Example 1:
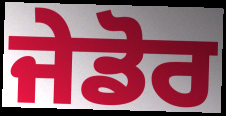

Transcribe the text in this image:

ਜੇਡੋਰ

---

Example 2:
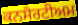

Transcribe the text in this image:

ਕਨਸੋਰਟੀਅਮ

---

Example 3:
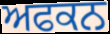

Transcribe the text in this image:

ਅਫਕਨ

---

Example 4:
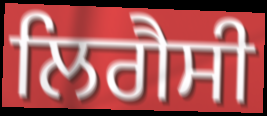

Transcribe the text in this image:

ਲਿਗੈਸੀ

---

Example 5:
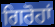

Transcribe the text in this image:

ਗਿਰੋਹਾਂ